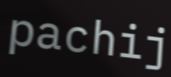
pachij